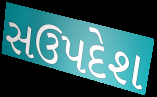
સઉપદેશ